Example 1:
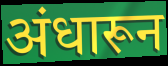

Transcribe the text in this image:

अंधारून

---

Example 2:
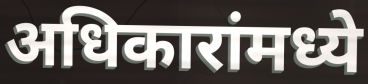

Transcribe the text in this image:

अधिकारांमध्ये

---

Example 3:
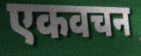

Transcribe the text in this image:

एकवचन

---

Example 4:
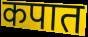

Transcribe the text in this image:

कपात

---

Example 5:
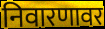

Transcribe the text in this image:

निवारणावर